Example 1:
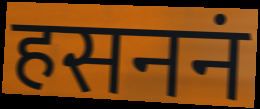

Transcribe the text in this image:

हसननं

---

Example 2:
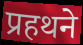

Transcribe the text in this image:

प्रहथने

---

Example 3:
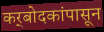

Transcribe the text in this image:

कर्बोदकांपासून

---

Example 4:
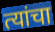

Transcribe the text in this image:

त्‍यांचा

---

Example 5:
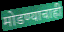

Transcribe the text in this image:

मोडण्याचाही